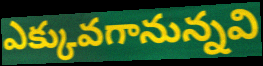
ఎక్కువగానున్నవి